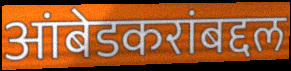
आंबेडकरांबद्दल